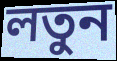
লতুন